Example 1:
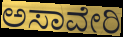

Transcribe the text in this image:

ಅಸಾವೇರಿ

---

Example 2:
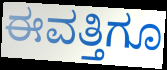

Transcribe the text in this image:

ಈವತ್ತಿಗೂ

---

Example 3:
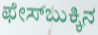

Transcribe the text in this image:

ಫೇಸ್‌ಬುಕ್ಕಿನ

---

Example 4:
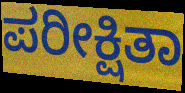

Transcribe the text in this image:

ಪರೀಕ್ಷಿತಾ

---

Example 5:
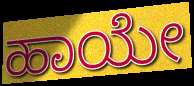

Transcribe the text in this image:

ಹಾಯೇ